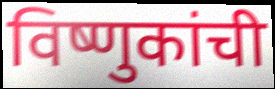
विष्णुकांची